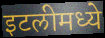
इटलीमध्ये